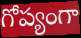
గోప్యంగా